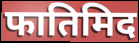
फातिमिद